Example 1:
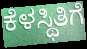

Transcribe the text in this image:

ಕೆಳಸ್ಥಿತಿಗೆ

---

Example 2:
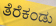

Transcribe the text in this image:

ತೆರೆಕಂಡು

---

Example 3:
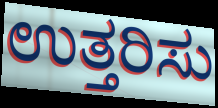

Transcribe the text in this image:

ಉತ್ತರಿಸು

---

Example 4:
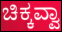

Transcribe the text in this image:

ಚಿಕ್ಕವ್ವಾ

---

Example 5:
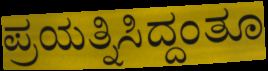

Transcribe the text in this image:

ಪ್ರಯತ್ನಿಸಿದ್ದಂತೂ